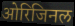
ओरिजिनल